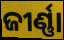
ଜୀର୍ଣ୍ଣା